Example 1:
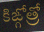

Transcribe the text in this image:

కిఙ్గోత్రో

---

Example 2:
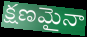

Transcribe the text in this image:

క్షణమైనా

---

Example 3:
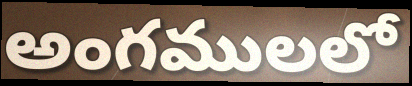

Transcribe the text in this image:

అంగములలో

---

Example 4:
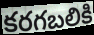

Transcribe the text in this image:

కరగబలికి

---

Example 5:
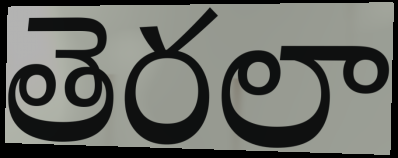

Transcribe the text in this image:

తెరలా